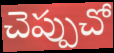
చెప్పుచో